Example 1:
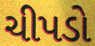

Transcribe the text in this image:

ચીપડો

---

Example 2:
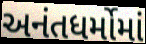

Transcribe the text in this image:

અનંતધર્મોમાં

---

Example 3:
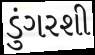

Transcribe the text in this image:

ડુંગરશી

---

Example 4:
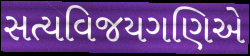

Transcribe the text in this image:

સત્યવિજયગણિએ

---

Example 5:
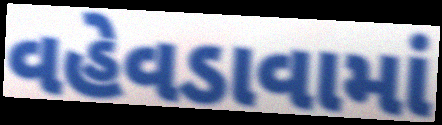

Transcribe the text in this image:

વહેવડાવામાં